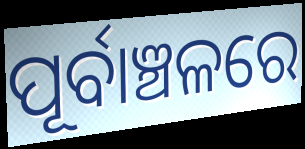
ପୂର୍ବାଞ୍ଚଳରେ